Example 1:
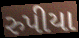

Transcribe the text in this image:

રુપીયા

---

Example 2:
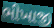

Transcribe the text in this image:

ભીખાજી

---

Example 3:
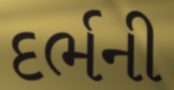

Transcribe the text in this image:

દર્ભની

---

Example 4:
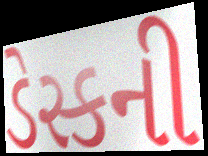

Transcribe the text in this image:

ડેસ્કની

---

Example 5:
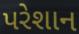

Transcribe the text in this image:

પરેશાન